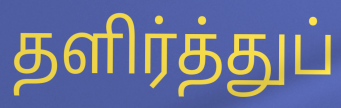
தளிர்த்துப்